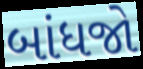
બાંધજો